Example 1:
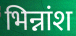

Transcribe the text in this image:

भिन्नांश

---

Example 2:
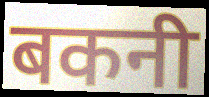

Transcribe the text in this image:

बकनी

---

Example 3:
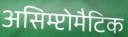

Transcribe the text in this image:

असिम्प्टोमैटिक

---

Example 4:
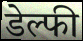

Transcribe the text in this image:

डेल्फी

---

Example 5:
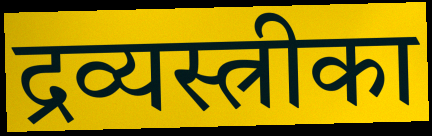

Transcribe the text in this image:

द्रव्यस्त्रीका